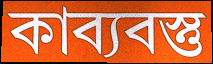
কাব্যবস্তু